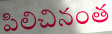
పిలిచినంత